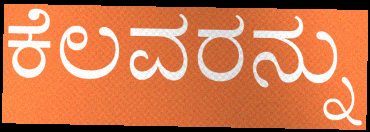
ಕೆಲವರನ್ನು